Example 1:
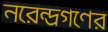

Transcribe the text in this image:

নরেন্দ্রগণের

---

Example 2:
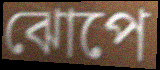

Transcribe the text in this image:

ঝোপে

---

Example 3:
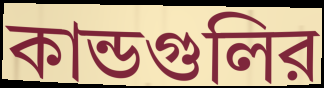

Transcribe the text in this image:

কান্ডগুলির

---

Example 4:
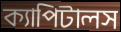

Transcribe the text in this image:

ক্যাপিটালস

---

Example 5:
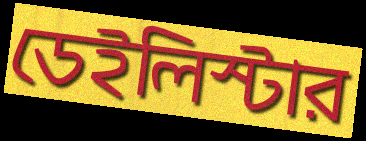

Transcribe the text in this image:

ডেইলিস্টার